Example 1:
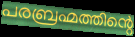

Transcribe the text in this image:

പരബ്രഹ്മത്തിന്റെ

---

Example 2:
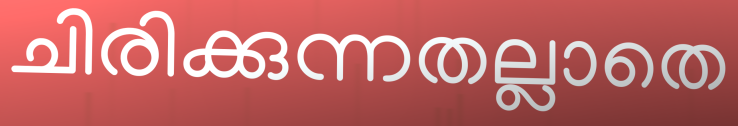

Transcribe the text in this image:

ചിരിക്കുന്നതല്ലാതെ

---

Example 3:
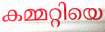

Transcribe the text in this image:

കമ്മറ്റിയെ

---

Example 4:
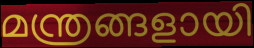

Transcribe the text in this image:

മന്ത്രങ്ങളായി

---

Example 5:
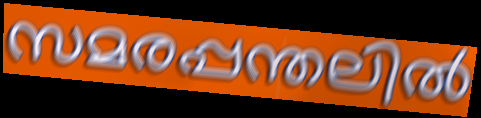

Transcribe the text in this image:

സമരപ്പന്തലിൽ